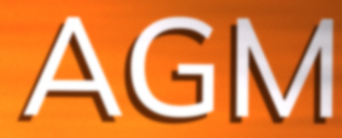
AGM